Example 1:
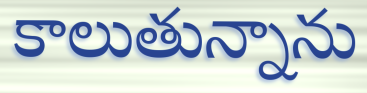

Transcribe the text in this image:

కాలుతున్నాను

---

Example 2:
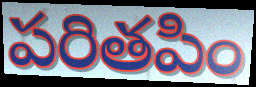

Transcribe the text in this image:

పరితపిం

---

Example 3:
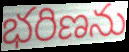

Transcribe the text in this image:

భరిణను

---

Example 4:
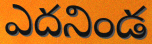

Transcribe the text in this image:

ఎదనిండ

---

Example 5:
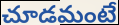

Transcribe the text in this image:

చూడమంటే